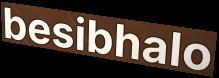
besibhalo